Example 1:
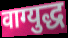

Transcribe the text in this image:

वाग्युद्ध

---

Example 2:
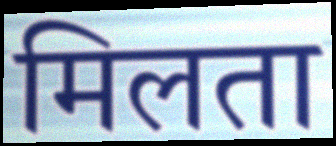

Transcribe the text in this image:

मिलता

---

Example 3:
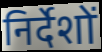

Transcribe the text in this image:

निर्देशों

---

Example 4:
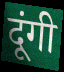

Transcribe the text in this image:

दूंगी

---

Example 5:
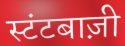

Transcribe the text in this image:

स्टंटबाज़ी